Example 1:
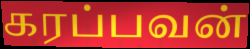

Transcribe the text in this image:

கரப்பவன்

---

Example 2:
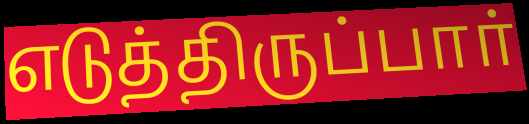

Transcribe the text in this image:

எடுத்திருப்பார்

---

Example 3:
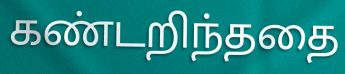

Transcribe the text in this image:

கண்டறிந்ததை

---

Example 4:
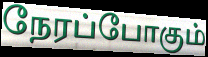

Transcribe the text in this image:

நேரப்போகும்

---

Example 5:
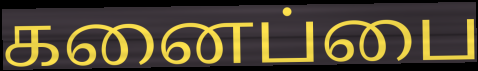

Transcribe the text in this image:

கனைப்பை